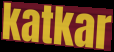
katkar